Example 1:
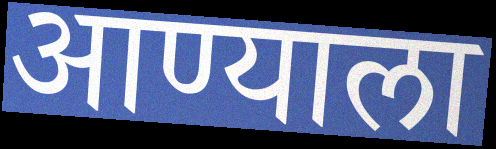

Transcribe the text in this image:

आण्याला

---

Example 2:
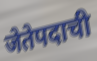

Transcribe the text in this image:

जेतेपदाची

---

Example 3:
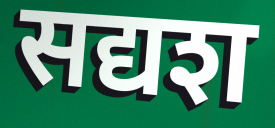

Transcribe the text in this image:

सद्यश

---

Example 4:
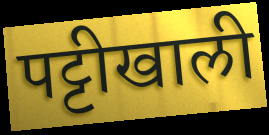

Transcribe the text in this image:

पट्टीखाली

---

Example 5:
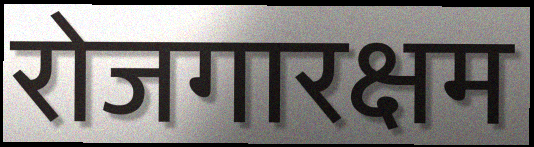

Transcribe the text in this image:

रोजगारक्षम